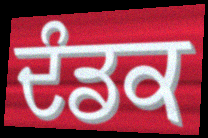
ਦੰਡਕ